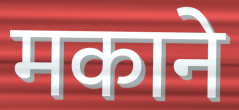
मकाने